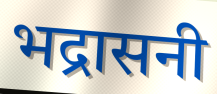
भद्रासनी